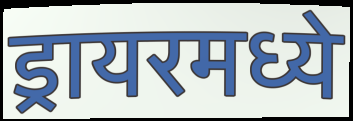
ड्रायरमध्ये